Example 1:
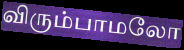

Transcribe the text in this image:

விரும்பாமலோ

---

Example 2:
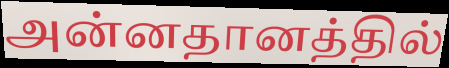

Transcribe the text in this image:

அன்னதானத்தில்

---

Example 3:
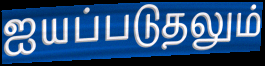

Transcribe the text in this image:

ஐயப்படுதலும்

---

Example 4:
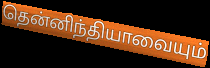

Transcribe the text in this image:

தென்னிந்தியாவையும்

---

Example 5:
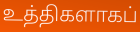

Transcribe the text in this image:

உத்திகளாகப்